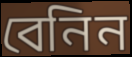
বেনিন